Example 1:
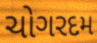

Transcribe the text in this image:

ચોગરદમ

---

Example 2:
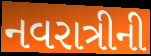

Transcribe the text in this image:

નવરાત્રીની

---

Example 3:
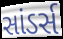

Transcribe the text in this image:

સાંડર્સ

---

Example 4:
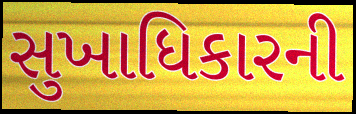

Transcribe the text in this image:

સુખાધિકારની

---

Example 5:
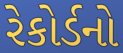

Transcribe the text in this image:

રેકોર્ડનો